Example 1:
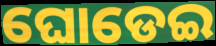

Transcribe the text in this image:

ଘୋଡେଇ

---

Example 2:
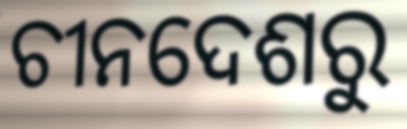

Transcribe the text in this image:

ଚୀନଦେଶରୁ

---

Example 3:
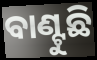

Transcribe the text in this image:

ବାଣ୍ଟୁଛି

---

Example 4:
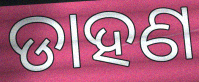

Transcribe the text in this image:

ଡାହଣ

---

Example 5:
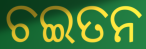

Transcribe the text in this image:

ଚଇତନ